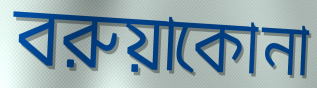
বরুয়াকোনা